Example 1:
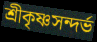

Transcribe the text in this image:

শ্রীকৃষ্ণসন্দর্ভ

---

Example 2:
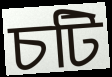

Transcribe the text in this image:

চটি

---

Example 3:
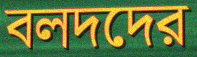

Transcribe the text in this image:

বলদদের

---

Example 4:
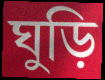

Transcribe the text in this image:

ঘুড়ি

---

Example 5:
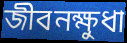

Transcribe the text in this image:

জীবনক্ষুধা